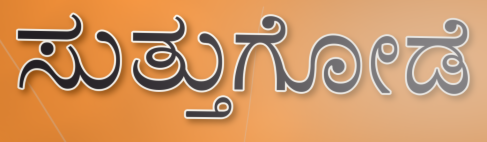
ಸುತ್ತುಗೋಡೆ